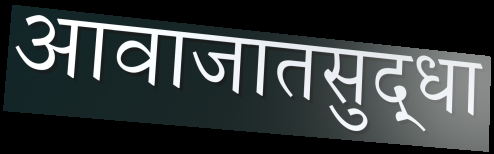
आवाजातसुद्धा